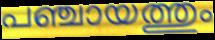
പഞ്ചായത്തും